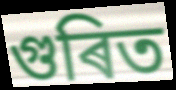
গুৰিত